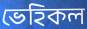
ভেহিকল